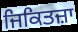
ਜਿਕਿਤਜ਼ਾ